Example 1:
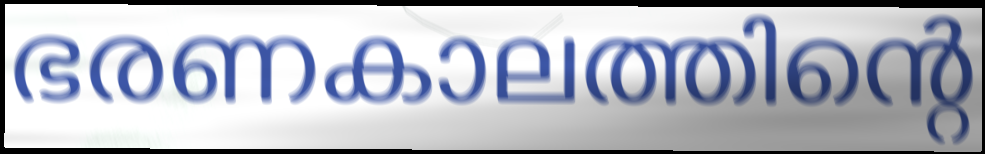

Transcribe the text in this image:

ഭരണകാലത്തിന്റെ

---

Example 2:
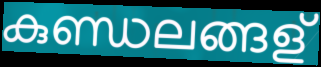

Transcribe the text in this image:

കുണ്ഡലങ്ങള്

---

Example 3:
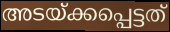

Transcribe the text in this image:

അടയ്ക്കപ്പെട്ടത്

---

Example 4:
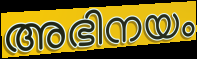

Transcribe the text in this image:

അഭിനയം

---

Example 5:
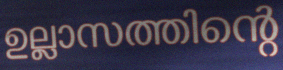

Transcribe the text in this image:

ഉല്ലാസത്തിന്റെ